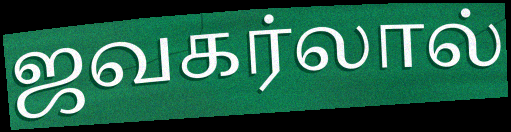
ஜவகர்லால்